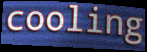
cooling